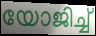
യോജിച്ച്